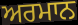
ਅਰਮਾਨ